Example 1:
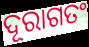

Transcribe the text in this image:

ଦୂରାଗତଂ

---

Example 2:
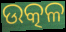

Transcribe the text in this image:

ଉତ୍କଳ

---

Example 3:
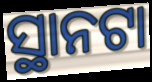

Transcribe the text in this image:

ସ୍ଥାନଟା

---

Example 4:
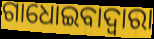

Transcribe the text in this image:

ଗାଧୋଇବାଦ୍ଵାରା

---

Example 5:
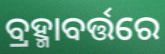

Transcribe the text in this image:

ବ୍ରହ୍ମାବର୍ତ୍ତରେ